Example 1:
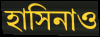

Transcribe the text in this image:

হাসিনাও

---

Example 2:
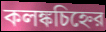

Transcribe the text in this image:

কলঙ্কচিহ্নের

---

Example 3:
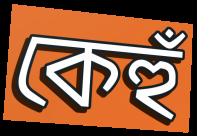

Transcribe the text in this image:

কেহুঁ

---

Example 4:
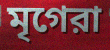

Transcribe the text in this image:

মৃগেরা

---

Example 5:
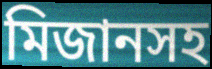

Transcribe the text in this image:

মিজানসহ